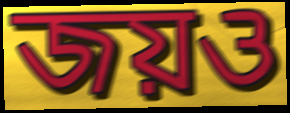
জয়ও